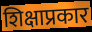
शिक्षाप्रकार